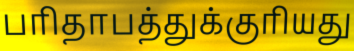
பரிதாபத்துக்குரியது